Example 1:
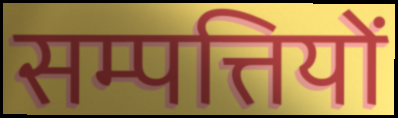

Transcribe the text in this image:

सम्‍पत्तियों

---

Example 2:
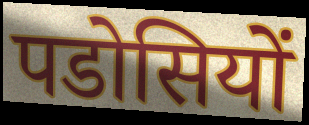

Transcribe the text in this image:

पडोसियों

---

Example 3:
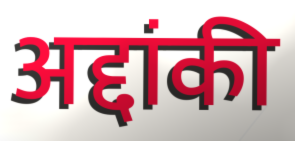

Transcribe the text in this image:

अद्दांकी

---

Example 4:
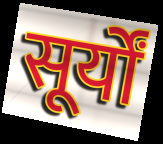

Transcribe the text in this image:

सूर्यों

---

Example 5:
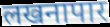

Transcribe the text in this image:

लखनापार